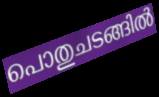
പൊതുചടങ്ങിൽ